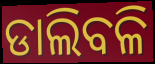
ଡାଲିବଳି